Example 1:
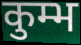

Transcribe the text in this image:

कुम्भ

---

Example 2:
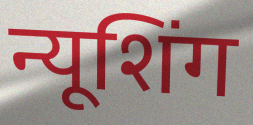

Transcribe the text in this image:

न्यूशिंग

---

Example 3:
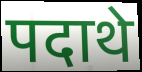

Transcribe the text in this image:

पदाथे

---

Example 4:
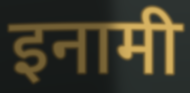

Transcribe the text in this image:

इनामी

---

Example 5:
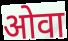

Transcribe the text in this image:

ओवा